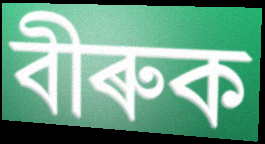
বীৰুক